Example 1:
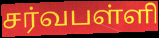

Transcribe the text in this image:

சர்வபள்ளி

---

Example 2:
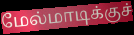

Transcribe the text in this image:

மேல்மாடிக்குச்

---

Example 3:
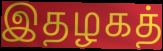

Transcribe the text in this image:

இதழகத்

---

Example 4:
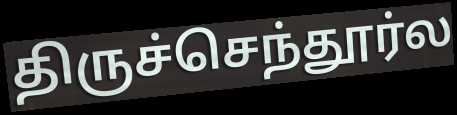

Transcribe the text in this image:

திருச்செந்தூர்ல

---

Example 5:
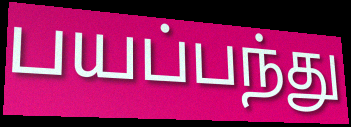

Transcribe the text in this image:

பயப்பந்து